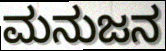
ಮನುಜನ